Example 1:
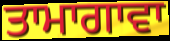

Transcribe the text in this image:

ਤਾਮਾਗਾਵਾ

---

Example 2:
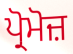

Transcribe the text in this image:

ਪ੍ਰੋਮੋਜ਼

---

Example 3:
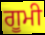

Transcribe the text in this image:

ਗੂਮੀ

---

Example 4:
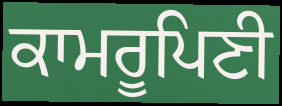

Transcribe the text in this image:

ਕਾਮਰੂਪਿਣੀ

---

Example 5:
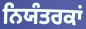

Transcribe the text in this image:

ਨਿਯੰਤਰਕਾਂ